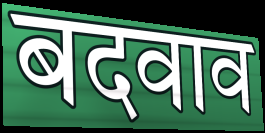
बदवाव